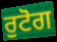
ਰੁਟੋਗ